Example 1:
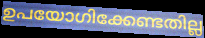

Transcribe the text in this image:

ഉപയോഗിക്കേണ്ടതില്ല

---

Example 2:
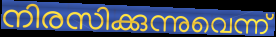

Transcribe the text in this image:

നിരസിക്കുന്നുവെന്ന്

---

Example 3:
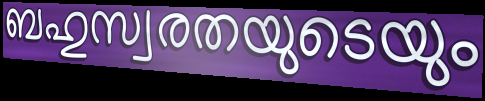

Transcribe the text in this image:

ബഹുസ്വരതയുടെയും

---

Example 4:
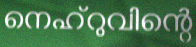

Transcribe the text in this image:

നെഹ്റുവിന്റെ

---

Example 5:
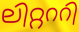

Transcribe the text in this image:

ലിറ്റററി